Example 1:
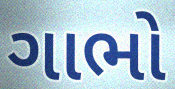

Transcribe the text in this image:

ગાભો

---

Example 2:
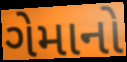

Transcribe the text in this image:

ગેમાનો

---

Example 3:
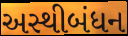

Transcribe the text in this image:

અસ્થીબંધન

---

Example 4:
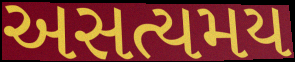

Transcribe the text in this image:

અસત્યમય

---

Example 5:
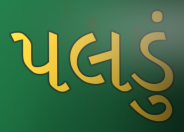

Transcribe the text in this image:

પલડું